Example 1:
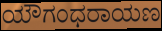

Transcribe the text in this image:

ಯೌಗಂಧರಾಯಣ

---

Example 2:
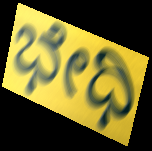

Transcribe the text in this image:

ಭೇಧಿ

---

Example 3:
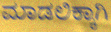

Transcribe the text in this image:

ಮಾಡಲಿಕ್ಕಾಗಿ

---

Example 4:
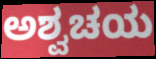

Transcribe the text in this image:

ಅಶ್ವಚಯ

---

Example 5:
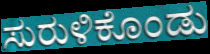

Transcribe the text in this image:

ಸುರುಳಿಕೊಂಡು